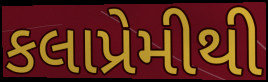
કલાપ્રેમીથી